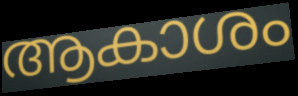
ആകാശം